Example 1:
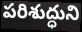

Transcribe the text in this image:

పరిశుద్ధుని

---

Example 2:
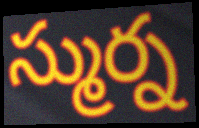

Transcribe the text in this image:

స్ముర్న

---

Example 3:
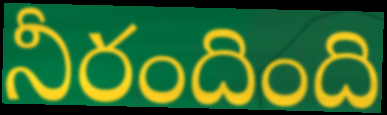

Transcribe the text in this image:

నీరందింది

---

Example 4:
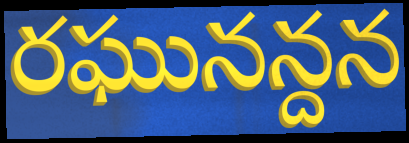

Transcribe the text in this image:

రఘునన్దన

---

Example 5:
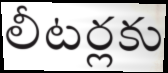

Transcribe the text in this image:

లీటర్లకు